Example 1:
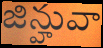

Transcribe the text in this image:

జిన్హువా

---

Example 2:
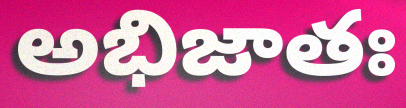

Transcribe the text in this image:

అభిజాతః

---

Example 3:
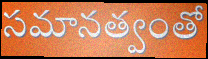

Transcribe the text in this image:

సమానత్వంతో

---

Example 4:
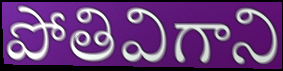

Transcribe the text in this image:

పోతివిగాని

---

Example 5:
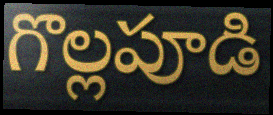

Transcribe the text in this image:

గొల్లపూడి